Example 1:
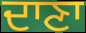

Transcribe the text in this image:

ਦਾਣਾ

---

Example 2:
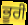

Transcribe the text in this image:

ਭੂਰੀ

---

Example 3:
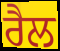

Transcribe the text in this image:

ਰੈਲ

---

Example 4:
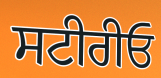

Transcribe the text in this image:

ਸਟੀਰੀਓ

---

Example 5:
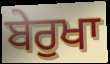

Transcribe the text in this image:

ਬੇਰੁਖਾ